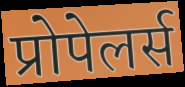
प्रोपेलर्स